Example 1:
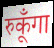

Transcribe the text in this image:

रुकूँगा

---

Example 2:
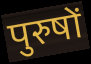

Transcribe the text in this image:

पुरुषों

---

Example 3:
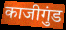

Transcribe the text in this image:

काजीगुंड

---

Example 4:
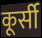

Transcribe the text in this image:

कूर्सी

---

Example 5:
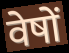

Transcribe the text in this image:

वेषों